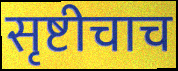
सृष्टीचाच